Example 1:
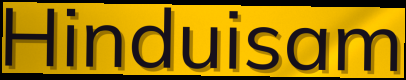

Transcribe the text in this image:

Hinduisam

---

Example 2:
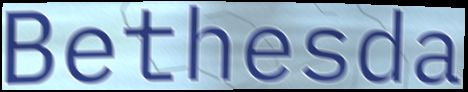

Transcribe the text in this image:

Bethesda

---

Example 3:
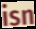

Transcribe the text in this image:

isn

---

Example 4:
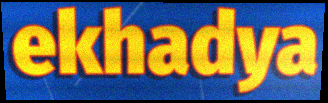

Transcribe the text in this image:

ekhadya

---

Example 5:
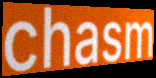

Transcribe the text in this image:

chasm